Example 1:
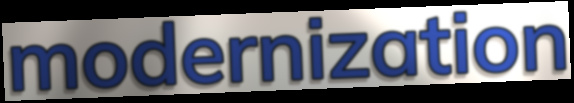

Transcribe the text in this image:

modernization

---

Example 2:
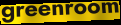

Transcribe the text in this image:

greenroom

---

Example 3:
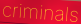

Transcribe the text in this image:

criminals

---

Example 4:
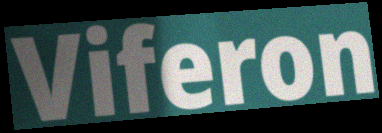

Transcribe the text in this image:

Viferon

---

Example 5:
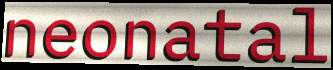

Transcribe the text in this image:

neonatal